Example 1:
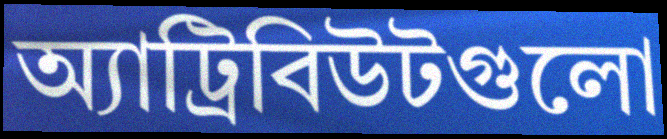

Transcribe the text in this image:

অ্যাট্রিবিউটগুলো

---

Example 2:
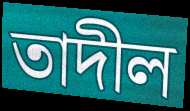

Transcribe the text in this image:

তাদীল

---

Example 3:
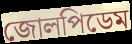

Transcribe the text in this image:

জোলপিডেম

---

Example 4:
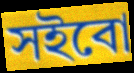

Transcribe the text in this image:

সইবো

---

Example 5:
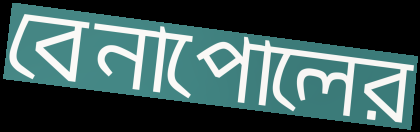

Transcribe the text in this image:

বেনাপোলের